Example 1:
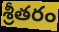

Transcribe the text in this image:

శ్రీతరం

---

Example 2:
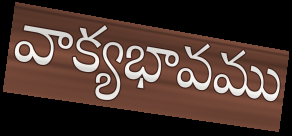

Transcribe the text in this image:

వాక్యభావము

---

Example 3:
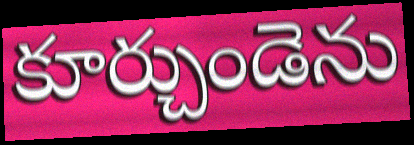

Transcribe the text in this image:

కూర్చుండెను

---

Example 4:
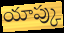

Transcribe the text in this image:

యాప్కు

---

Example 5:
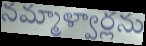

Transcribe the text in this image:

నమ్మాళ్వార్లను